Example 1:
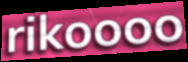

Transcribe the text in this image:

rikoooo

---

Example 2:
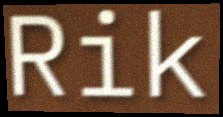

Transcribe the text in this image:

Rik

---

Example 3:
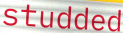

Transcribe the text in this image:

studded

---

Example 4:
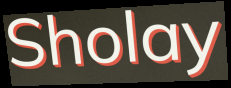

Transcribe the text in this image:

Sholay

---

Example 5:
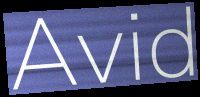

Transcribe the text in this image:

Avid